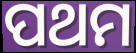
ପଥମ